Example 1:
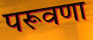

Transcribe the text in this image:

परूवणा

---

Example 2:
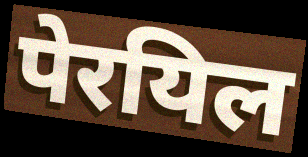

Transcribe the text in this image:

पेरयिल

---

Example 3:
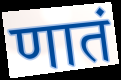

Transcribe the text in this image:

णातं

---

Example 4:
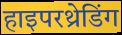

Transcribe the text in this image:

हाइपरथ्रेडिंग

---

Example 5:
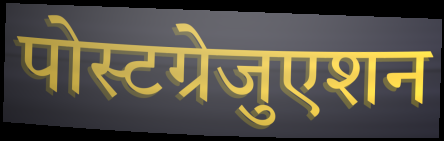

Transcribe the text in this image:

पोस्टग्रेजुएशन